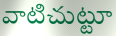
వాటిచుట్టూ